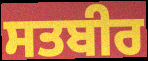
ਸਤਬੀਰ